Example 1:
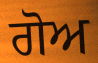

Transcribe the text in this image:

ਗੋਅ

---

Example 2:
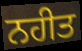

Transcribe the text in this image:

ਨਹੀਤ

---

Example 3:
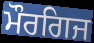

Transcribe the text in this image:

ਮੌਰਗਿਜ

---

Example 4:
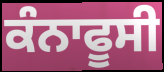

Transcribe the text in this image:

ਕੰਨਾਫੂਸੀ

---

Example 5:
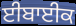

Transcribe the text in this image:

ਈਬਾਈਕ